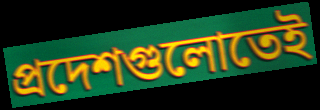
প্রদেশগুলোতেই